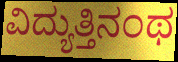
ವಿದ್ಯುತ್ತಿನಂಥ